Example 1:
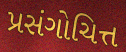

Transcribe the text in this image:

પ્રસંગોચિત્ત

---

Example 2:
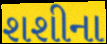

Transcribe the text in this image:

શશીના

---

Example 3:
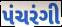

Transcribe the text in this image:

પંચરંગી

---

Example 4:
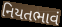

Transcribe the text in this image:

નિયતભાવં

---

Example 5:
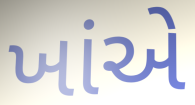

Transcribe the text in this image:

ખાંએ